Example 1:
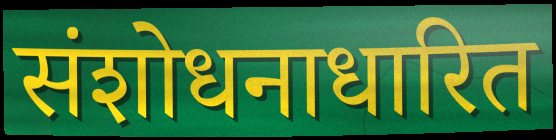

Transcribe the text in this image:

संशोधनाधारित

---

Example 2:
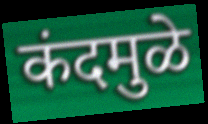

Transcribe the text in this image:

कंदमुळे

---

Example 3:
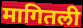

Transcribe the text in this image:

मागितली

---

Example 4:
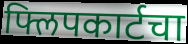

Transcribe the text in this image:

फ्लिपकार्टचा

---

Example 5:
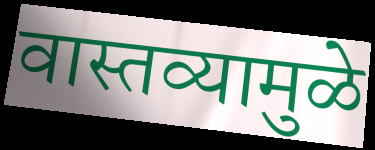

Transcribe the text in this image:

वास्तव्यामुळे